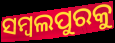
ସମ୍ୱଲପୁରକୁ